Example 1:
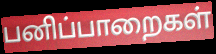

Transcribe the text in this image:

பனிப்பாறைகள்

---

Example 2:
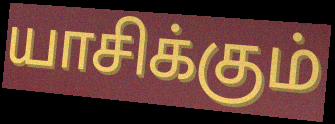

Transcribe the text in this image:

யாசிக்கும்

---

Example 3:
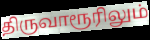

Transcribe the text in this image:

திருவாரூரிலும்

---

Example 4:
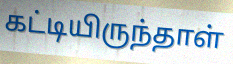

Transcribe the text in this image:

கட்டியிருந்தாள்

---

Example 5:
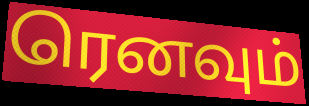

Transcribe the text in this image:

ரெனவும்